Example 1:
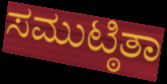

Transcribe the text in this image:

ಸಮುಟ್ಠಿತಾ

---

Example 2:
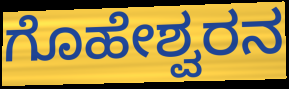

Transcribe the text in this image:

ಗೊಹೇಶ್ವರನ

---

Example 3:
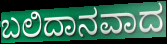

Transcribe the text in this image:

ಬಲಿದಾನವಾದ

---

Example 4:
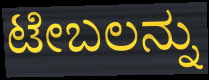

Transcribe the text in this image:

ಟೇಬಲನ್ನು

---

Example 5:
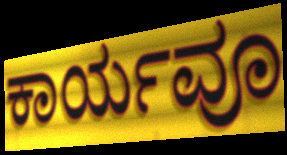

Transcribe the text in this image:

ಕಾರ್ಯವೂ